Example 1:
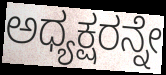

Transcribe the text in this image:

ಅಧ್ಯಕ್ಷರನ್ನೇ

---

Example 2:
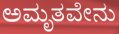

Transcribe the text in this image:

ಅಮೃತವೇನು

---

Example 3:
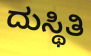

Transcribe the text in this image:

ದುಸ್ಥಿತಿ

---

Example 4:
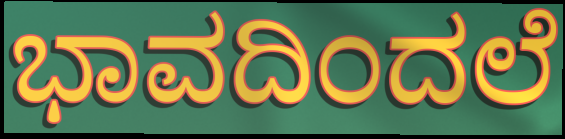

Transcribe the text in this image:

ಭಾವದಿಂದಲೆ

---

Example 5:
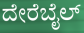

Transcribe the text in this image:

ದೇರೆಬೈಲ್